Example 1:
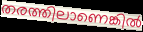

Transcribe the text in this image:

തരത്തിലാണെങ്കിൽ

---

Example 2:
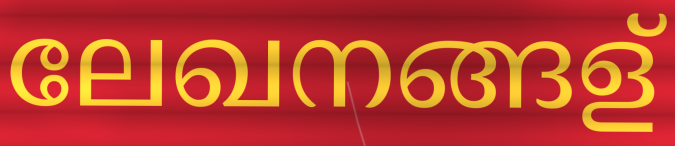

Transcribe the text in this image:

ലേഖനങ്ങള്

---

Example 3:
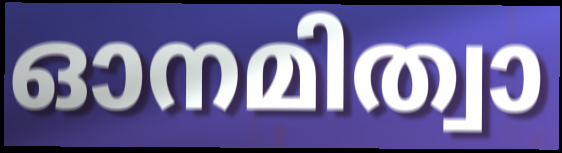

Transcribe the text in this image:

ഓനമിത്വാ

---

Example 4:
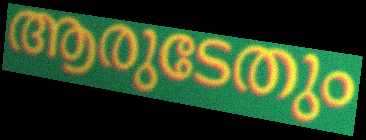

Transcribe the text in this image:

ആരുടേതും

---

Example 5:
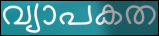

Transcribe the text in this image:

വ്യാപകത